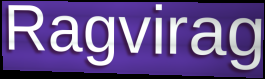
Ragvirag